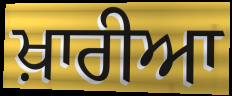
ਖ਼ਾਰੀਆ